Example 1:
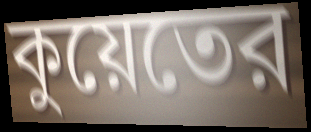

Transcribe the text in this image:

কুয়েতের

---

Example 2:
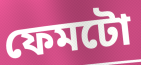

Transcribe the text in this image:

ফেমটো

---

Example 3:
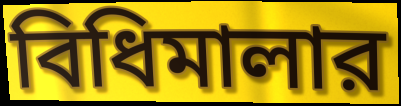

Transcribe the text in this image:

বিধিমালার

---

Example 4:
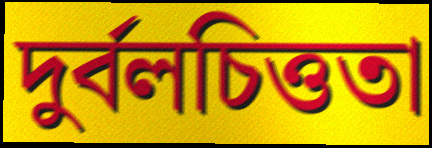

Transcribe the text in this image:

দুর্বলচিত্ততা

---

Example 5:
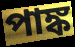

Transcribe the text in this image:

পাঙ্ক